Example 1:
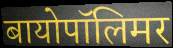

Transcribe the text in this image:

बायोपॉलिमर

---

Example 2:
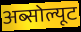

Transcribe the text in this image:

अब्सोल्यूट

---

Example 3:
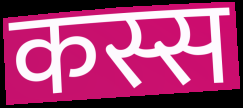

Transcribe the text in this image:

कस्स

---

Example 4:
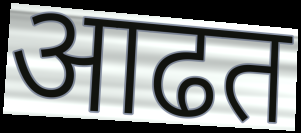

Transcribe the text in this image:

आढत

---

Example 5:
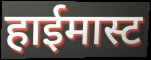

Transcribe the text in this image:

हाईमास्ट